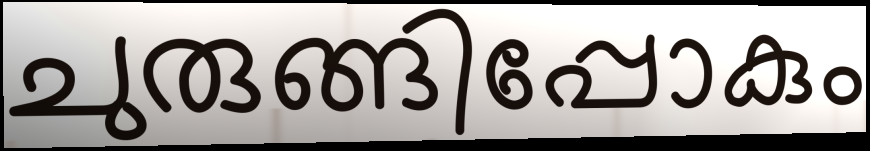
ചുരുങ്ങിപ്പോകും